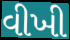
વીખી